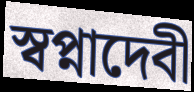
স্বপ্নাদেবী